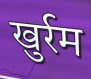
खुर्रम